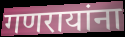
गणरायांना